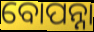
ବୋପନ୍ନା